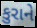
કુરાને